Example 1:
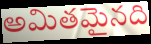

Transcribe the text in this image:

అమితమైనది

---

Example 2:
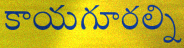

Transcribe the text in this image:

కాయగూరల్ని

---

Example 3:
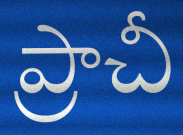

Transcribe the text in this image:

ప్రాచీ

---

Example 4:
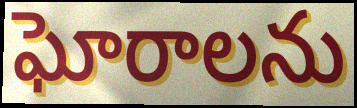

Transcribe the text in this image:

ఘోరాలను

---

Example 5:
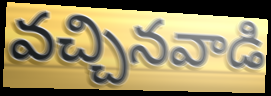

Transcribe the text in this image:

వచ్చినవాడి